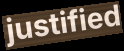
justified